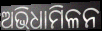
ଅଭିଧାମିଳନ